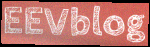
EEVblog